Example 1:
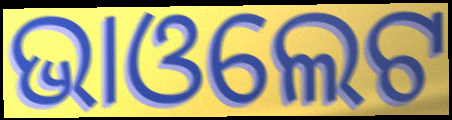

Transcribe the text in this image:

ଭାଓଲେଟ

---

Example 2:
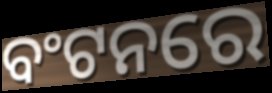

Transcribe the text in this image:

ବଂଟନରେ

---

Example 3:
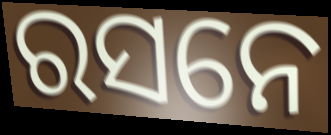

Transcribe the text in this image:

ରସନେ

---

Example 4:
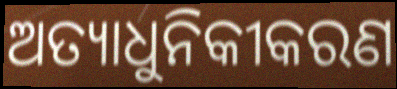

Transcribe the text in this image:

ଅତ୍ୟାଧୁନିକୀକରଣ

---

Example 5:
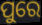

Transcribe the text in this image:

ପୁରେ